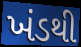
ખંડથી